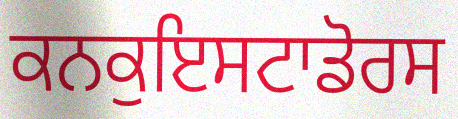
ਕਨਕੁਇਸਟਾਡੋਰਸ